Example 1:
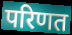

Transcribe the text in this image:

परिणत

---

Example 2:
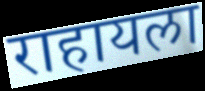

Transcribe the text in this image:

राहायला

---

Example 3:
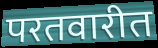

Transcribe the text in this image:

परतवारीत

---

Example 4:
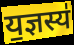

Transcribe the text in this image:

य॒ज्ञस्य॑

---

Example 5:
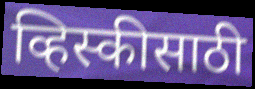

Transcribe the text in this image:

व्हिस्कीसाठी